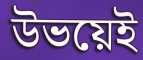
উভয়েই